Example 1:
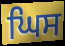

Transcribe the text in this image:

ਘਿਸ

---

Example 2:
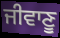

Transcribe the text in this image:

ਜੀਵਾਣੂ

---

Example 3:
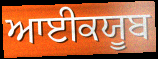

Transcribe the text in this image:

ਆਈਕਯੂਬ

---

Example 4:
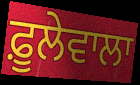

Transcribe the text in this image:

ਫ਼ੂਲੇਵਾਲਾ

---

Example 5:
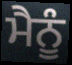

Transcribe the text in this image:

ਮੈਨੂੰ